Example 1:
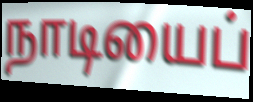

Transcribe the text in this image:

நாடியைப்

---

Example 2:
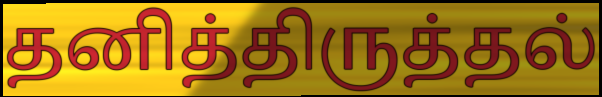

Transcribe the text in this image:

தனித்திருத்தல்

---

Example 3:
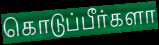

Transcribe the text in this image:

கொடுப்பீர்களா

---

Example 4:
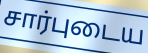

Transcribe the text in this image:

சார்புடைய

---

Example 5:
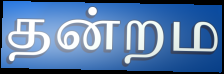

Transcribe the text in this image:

தன்றம